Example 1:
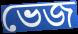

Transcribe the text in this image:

ভেজ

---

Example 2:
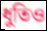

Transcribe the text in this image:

ধুতিও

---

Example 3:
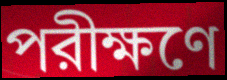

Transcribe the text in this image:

পরীক্ষণে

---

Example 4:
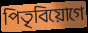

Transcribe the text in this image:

পিতৃবিয়োগে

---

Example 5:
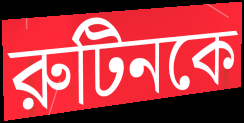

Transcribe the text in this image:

রুটিনকে